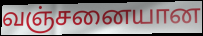
வஞ்சனையான